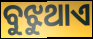
ବୁଝୁଥାଏ